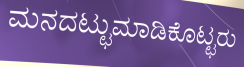
ಮನದಟ್ಟುಮಾಡಿಕೊಟ್ಟರು